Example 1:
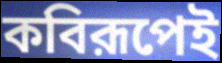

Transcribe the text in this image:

কবিরূপেই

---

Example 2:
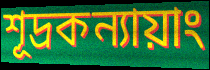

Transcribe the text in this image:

শূদ্রকন্যায়াং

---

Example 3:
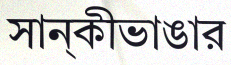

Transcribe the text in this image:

সান্কীভাঙার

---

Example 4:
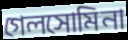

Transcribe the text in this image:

গেলসোমিনা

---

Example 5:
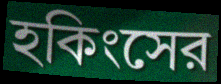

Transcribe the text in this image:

হকিংসের